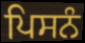
ਪਿਸਨੰ